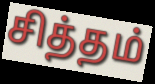
சித்தம்